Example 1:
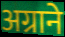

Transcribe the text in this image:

अग्राने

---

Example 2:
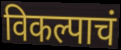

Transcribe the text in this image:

विकल्पाचं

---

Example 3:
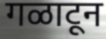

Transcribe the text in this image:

गळाटून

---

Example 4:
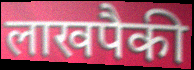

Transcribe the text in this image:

लाखपैकी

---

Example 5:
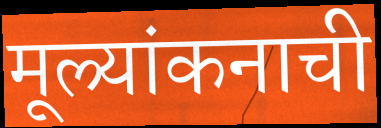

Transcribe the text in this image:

मूल्यांकनाची